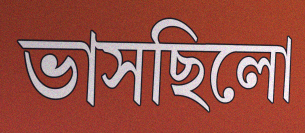
ভাসছিলো